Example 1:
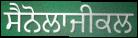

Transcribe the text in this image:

ਸੈਨੋਲਾਜੀਕਲ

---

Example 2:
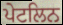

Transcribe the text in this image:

ਪੇਟਲਿਨ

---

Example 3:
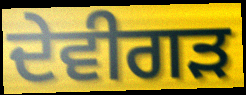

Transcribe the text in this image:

ਦੇਵੀਗੜ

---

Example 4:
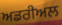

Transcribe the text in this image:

ਅਡਰੀਅਲ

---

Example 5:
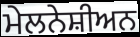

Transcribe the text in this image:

ਮੇਲਨੇਸ਼ੀਅਨ